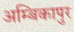
अम्बिकापुर